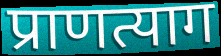
प्राणत्याग